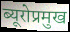
ब्यूरोप्रमुख